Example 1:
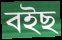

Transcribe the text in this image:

বইছ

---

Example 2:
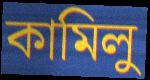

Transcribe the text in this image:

কামিলু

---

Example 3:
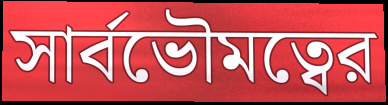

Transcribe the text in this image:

সার্বভৌমত্বের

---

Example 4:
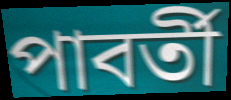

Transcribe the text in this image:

পাবর্তী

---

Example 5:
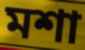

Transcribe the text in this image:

মশা